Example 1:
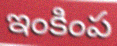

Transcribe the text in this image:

ఇంకింప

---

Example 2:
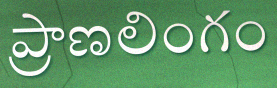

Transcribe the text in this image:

ప్రాణలింగం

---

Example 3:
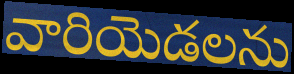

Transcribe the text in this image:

వారియెడలను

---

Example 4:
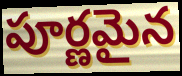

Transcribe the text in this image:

పూర్ణమైన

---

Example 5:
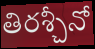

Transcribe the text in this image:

తిరశ్చీనో